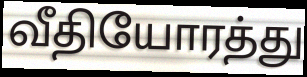
வீதியோரத்து